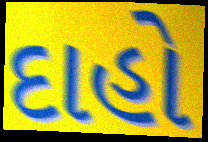
દાહો